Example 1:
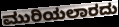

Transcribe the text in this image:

ಮುರಿಯಲಾರದು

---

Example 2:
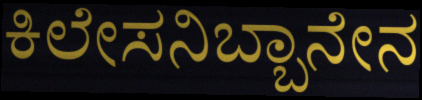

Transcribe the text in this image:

ಕಿಲೇಸನಿಬ್ಬಾನೇನ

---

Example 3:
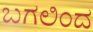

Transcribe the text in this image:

ಬಗಲಿಂದ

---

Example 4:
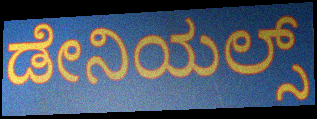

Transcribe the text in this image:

ಡೇನಿಯಲ್ಸ್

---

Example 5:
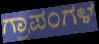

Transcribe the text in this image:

ಗ್ರಾಪಂಗಳ